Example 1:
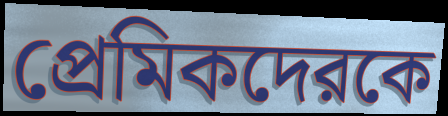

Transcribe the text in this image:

প্রেমিকদেরকে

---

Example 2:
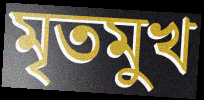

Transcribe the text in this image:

মৃতমুখ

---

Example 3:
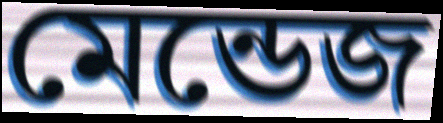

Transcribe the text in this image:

মেন্ডেজ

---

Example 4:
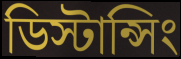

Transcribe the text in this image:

ডিস্টান্সিং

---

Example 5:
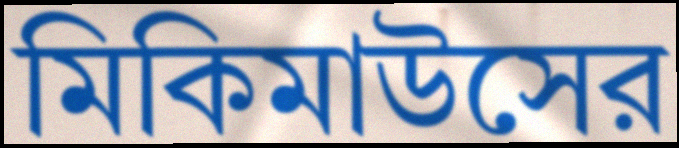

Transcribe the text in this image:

মিকিমাউসের